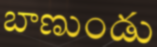
బాణుండు